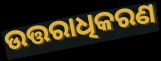
ଉତ୍ତରାଧିକରଣ